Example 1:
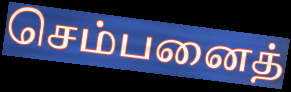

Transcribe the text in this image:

செம்பனைத்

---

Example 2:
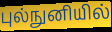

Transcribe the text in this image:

புல்நுனியில்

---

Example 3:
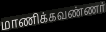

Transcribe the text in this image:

மாணிக்கவண்ணர்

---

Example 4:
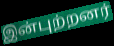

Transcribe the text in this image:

இன்புற்றனர்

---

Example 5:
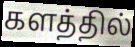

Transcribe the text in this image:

களத்தில்